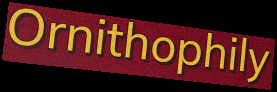
Ornithophily